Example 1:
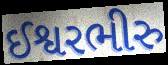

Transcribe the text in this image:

ઈશ્વરભીરુ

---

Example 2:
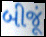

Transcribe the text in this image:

બીજૂં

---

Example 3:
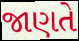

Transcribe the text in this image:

જાણતે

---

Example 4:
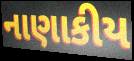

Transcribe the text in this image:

નાણાકીય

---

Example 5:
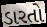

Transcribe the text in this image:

ડારતો